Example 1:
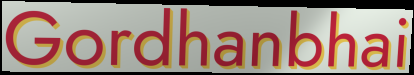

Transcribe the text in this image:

Gordhanbhai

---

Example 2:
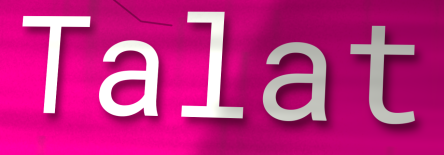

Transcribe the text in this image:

Talat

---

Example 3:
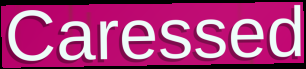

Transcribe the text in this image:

Caressed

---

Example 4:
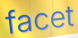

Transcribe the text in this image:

facet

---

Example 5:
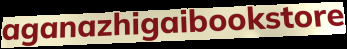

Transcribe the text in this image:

aganazhigaibookstore